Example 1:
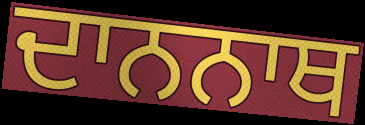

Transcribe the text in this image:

ਦਾਨਨਾਥ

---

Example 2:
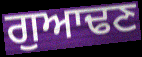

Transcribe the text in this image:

ਗੁਆਢਣ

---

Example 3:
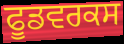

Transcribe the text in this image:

ਫੂਡਵਰਕਸ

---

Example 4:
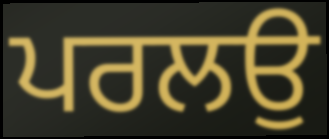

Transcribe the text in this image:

ਪਰਲਉ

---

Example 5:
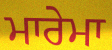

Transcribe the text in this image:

ਮਾਰੇਮਾ